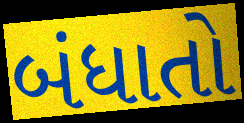
બંધાતો